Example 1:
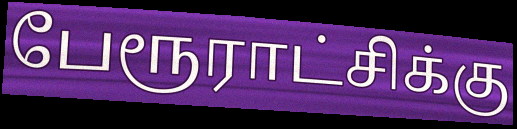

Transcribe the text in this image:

பேரூராட்சிக்கு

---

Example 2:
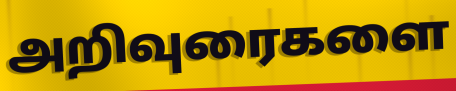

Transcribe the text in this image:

அறிவுரைகளை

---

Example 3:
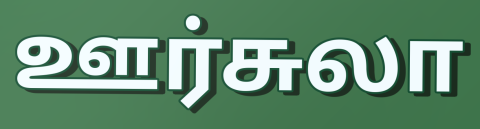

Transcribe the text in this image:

ஊர்சுலா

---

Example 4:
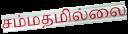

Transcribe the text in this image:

சம்மதமில்லை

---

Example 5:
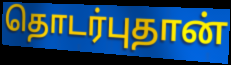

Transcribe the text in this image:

தொடர்புதான்